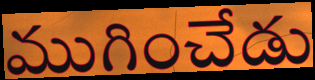
ముగించేడు